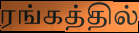
ரங்கத்தில்